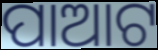
ପାଆଟ